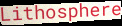
Lithosphere